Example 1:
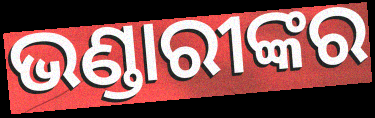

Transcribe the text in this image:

ଭଣ୍ଡାରୀଙ୍କର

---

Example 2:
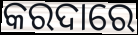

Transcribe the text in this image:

କରଦାରେ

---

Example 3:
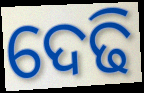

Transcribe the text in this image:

ଦେଢି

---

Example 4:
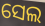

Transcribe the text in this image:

ସେଲ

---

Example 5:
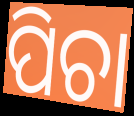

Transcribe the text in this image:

ପିଚା